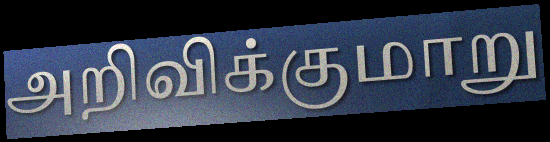
அறிவிக்குமாறு